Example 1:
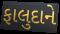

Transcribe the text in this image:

ફાલુદાને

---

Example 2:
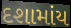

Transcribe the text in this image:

દશામાંય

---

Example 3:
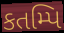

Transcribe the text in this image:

કતમ્પિ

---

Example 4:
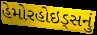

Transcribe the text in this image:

હેમોરહોઇડ્સનું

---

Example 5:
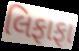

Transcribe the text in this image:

લિફાફા